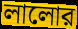
লালোর